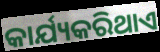
କାର୍ଯ୍ୟକରିଥାଏ